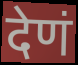
देणं